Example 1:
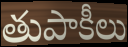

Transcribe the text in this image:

తుపాకీలు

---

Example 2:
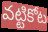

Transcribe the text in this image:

వట్టికోట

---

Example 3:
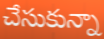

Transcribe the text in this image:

చేసుకున్నా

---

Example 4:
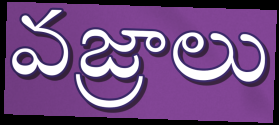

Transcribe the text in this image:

వజ్రాలు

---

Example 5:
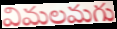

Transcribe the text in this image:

విమలమగు